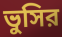
ভুসির